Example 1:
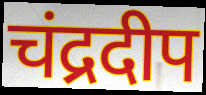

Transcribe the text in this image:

चंद्रदीप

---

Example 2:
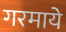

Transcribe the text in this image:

गरमाये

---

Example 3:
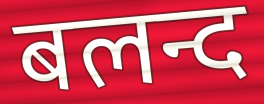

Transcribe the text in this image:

बलन्द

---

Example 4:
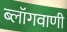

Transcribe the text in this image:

ब्लॉगवाणी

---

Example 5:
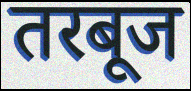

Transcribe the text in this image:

तरबूज